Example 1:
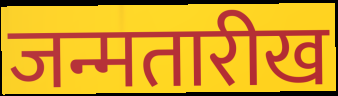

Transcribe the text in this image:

जन्मतारीख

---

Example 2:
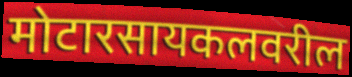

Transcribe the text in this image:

मोटारसायकलवरील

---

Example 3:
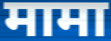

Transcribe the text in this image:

मामा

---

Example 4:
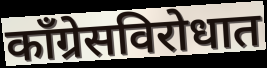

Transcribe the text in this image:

काँग्रेसविरोधात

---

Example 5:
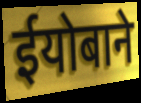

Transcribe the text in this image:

ईयोबाने